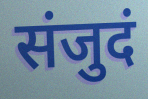
संजुदं